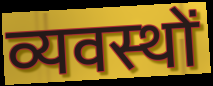
व्यवस्थों